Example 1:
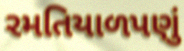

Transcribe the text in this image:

રમતિયાળપણું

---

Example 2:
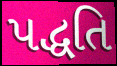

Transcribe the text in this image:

પદ્ધતિ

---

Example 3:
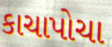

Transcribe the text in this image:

કાચાપોચા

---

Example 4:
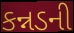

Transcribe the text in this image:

કન્નડની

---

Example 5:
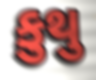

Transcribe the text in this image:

કુથુ